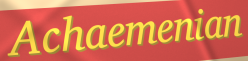
Achaemenian